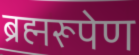
ब्रह्मरूपेण